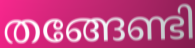
തങ്ങേണ്ടി